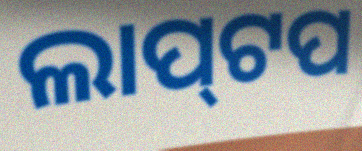
ଲାପ୍‌ଟପ